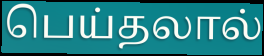
பெய்தலால்